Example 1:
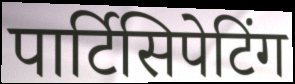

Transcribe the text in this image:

पार्टिसिपेटिंग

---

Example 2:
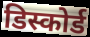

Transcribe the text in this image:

डिस्कोर्ड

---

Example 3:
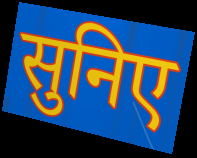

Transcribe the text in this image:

सुनिए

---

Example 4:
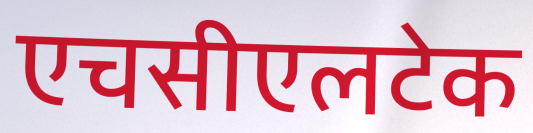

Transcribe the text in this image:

एचसीएलटेक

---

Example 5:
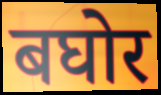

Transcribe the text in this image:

बघोर